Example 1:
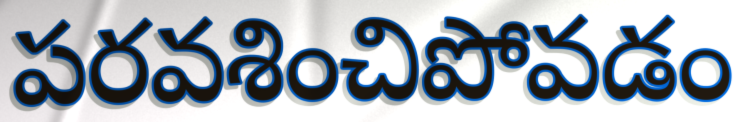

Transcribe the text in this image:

పరవశించిపోవడం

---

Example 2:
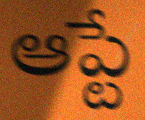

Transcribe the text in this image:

ఆప్టే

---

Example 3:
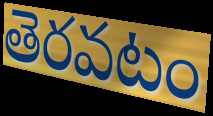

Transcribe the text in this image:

తెరవటం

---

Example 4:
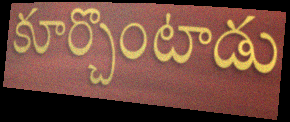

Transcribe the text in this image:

కూర్చొంటాడు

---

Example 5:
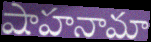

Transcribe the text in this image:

షాహనామా